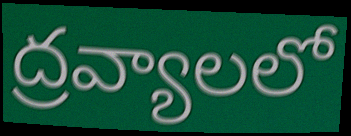
ద్రవ్యాలలో